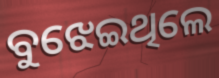
ବୁଝେଇଥିଲେ